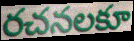
రచనలకూ